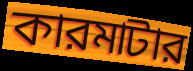
কারমাটার